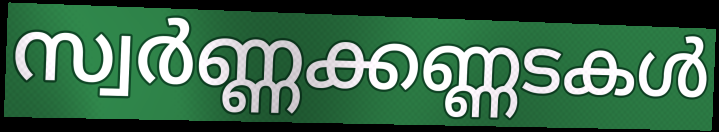
സ്വർണ്ണക്കണ്ണടകൾ